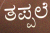
ತಪ್ಪಲೆ